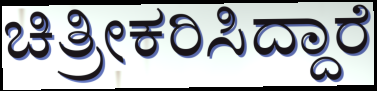
ಚಿತ್ರೀಕರಿಸಿದ್ದಾರೆ